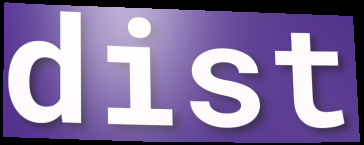
dist